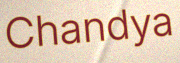
Chandya